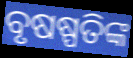
ବୃଷଷ୍ପତିଙ୍କ